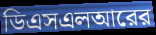
ডিএসএলআরের